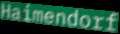
Haimendorf